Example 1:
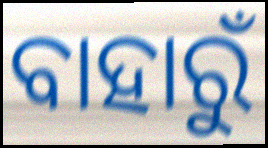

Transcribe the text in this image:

ବାହାରୁଁ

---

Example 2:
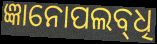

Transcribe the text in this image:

ଜ୍ଞାନୋପଲବ୍‌ଧି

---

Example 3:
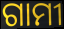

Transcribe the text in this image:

ଗାମୀ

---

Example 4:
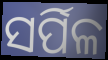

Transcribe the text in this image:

ସର୍ପିଳ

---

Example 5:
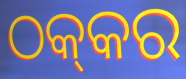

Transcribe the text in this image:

ଠକ୍‍କର